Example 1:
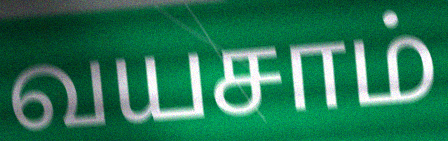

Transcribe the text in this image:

வயசாம்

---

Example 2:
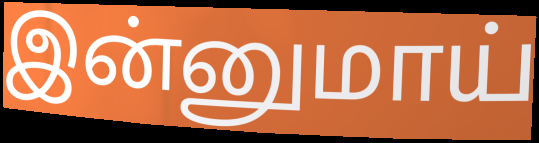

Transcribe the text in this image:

இன்னுமாய்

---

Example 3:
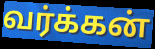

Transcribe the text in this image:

வர்க்கன்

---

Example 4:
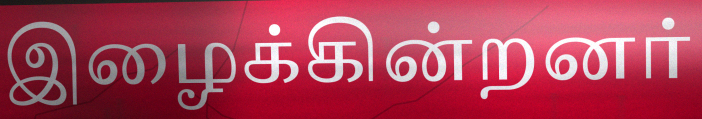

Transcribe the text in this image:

இழைக்கின்றனர்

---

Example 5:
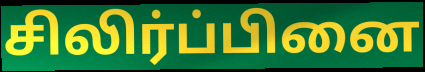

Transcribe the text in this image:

சிலிர்ப்பினை